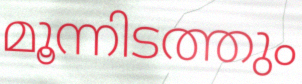
മൂന്നിടത്തും